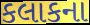
કલાકના